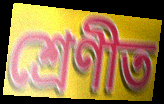
শ্ৰেণীত